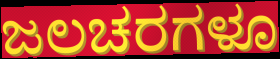
ಜಲಚರಗಳೂ